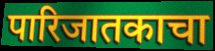
पारिजातकाचा